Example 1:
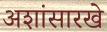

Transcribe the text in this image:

अशांसारखे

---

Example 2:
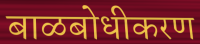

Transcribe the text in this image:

बाळबोधीकरण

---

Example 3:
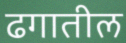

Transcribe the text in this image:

ढगातील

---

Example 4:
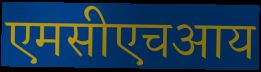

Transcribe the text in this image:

एमसीएचआय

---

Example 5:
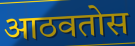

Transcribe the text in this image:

आठवतोस